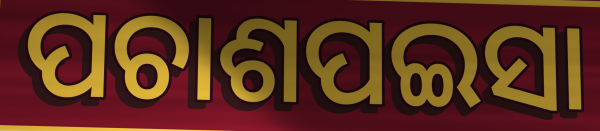
ପଚାଶପଇସା